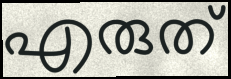
എരുത്